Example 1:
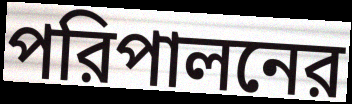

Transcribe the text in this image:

পরিপালনের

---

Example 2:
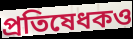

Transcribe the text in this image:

প্রতিষেধকও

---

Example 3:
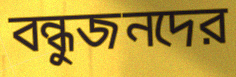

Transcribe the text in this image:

বন্ধুজনদের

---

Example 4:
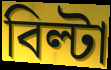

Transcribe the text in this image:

বিল্টা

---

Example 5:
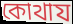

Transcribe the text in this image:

কোথায